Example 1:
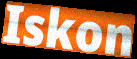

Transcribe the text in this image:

Iskon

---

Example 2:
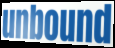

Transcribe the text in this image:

unbound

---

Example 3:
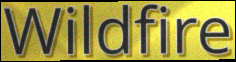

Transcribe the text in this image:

Wildfire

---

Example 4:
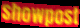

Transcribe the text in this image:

showpost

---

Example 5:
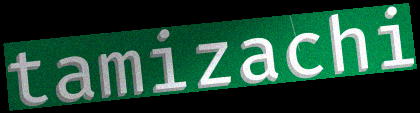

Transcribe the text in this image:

tamizachi